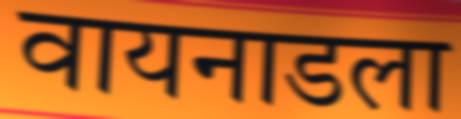
वायनाडला